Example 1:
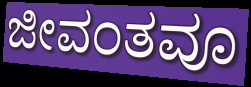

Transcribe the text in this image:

ಜೀವಂತವೂ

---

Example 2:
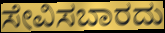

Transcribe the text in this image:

ಸೇವಿಸಬಾರದು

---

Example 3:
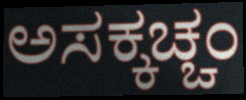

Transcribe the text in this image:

ಅಸಕ್ಕಚ್ಚಂ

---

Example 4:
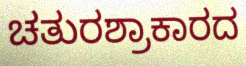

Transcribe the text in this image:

ಚತುರಶ್ರಾಕಾರದ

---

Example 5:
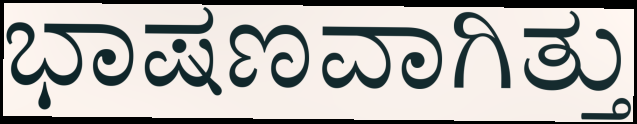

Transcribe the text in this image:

ಭಾಷಣವಾಗಿತ್ತು